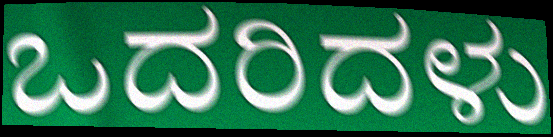
ಒದರಿದಳು